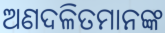
ଅଣଦଳିତମାନଙ୍କ